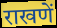
राखणें